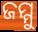
ଜମ୍ମୁ